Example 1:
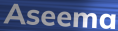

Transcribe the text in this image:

Aseema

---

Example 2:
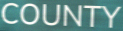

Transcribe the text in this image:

COUNTY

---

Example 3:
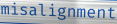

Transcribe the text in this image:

misalignment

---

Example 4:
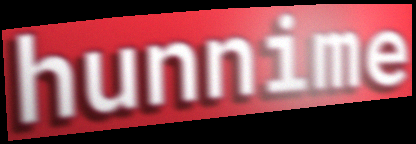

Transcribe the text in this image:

hunnime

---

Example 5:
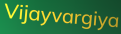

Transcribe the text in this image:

Vijayvargiya